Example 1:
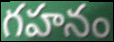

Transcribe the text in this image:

గహనం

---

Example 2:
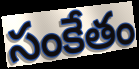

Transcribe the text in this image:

సంకేతం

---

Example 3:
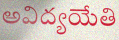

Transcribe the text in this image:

అవిద్యయేతి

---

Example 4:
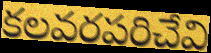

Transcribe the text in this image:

కలవరపరిచేవి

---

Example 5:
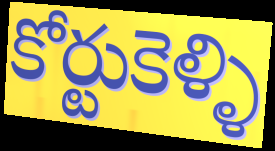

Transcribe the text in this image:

కోర్టుకెళ్ళి